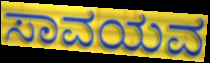
ಸಾವಯವ